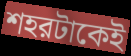
শহরটাকেই